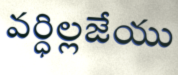
వర్ధిల్లజేయు